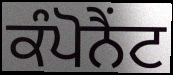
ਕੰਪੋਨੈਂਟ